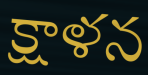
క్షాళన